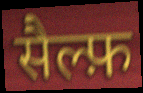
सैल्फ़